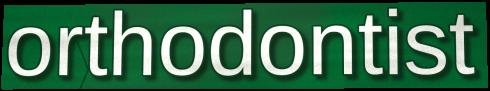
orthodontist